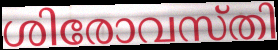
ശിരോവസ്തി